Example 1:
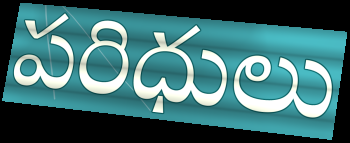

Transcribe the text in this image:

పరిధులు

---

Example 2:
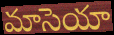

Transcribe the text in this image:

మాసెయా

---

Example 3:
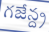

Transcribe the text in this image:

గజేన్ద్ర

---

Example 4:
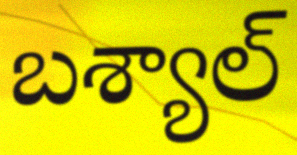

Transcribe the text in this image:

బశ్యాల్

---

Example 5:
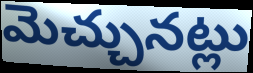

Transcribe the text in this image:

మెచ్చునట్లు